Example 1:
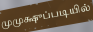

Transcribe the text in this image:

முமுக்ஷுப்படியில்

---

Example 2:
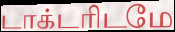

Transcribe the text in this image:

டாக்டரிடமே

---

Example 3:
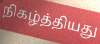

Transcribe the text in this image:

நிகழ்த்தியது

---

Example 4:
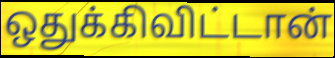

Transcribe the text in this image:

ஒதுக்கிவிட்டான்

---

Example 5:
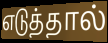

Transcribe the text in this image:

எடுத்தால்